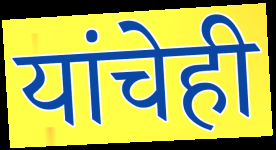
यांचेही